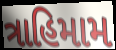
ત્રાહિમામ